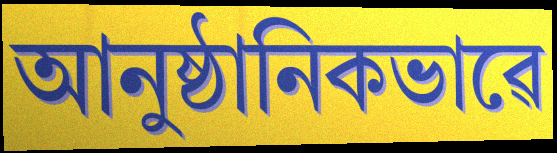
আনুষ্ঠানিকভাৱে